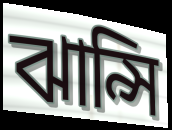
ঝান্সি